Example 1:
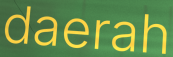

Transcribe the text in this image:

daerah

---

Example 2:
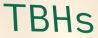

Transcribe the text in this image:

TBHs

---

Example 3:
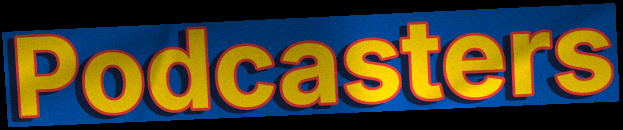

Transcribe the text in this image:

Podcasters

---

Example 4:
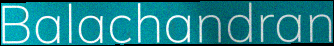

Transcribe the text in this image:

Balachandran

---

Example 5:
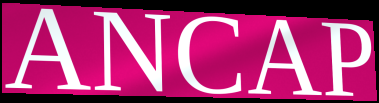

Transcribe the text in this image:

ANCAP